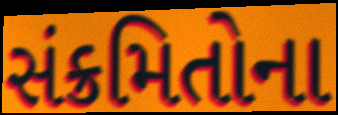
સંક્રમિતોના